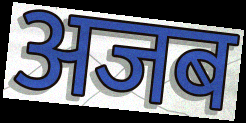
अजब